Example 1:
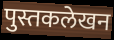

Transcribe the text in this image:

पुस्तकलेखन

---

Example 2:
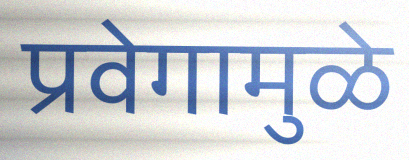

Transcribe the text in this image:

प्रवेगामुळे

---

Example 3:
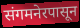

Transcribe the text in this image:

संगमनेरपासून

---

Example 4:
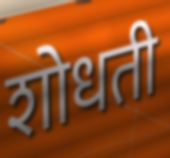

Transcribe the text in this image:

शोधती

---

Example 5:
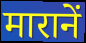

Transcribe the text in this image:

मारानें